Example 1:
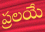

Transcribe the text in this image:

ప్రలయే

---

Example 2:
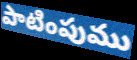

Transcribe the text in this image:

పాటింపుము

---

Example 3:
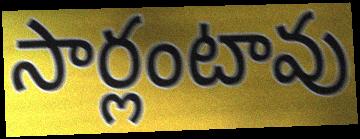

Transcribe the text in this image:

సార్లంటావు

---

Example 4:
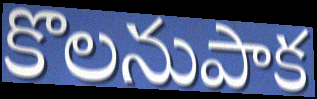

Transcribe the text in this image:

కొలనుపాక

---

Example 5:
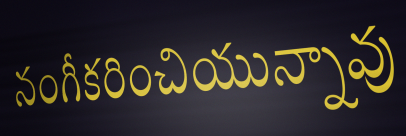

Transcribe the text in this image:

నంగీకరించియున్నావు